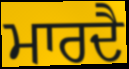
ਮਾਰਦੈ